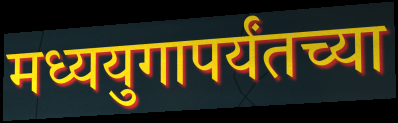
मध्ययुगापर्यंतच्या